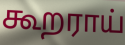
கூறராய்